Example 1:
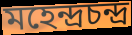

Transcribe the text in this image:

মহেন্দ্রচন্দ্র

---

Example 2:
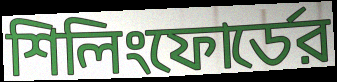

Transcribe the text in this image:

শিলিংফোর্ডের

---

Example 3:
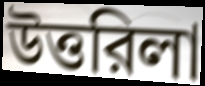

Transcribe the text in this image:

উত্তরিলা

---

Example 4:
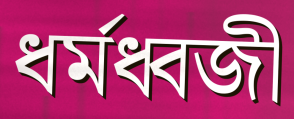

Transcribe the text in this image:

ধর্মধ্বজী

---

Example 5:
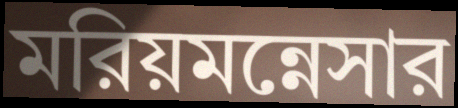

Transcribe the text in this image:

মরিয়মন্নেসার